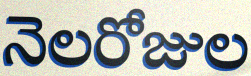
నెలరోజుల